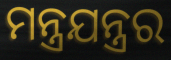
ମନ୍ତ୍ରଯନ୍ତ୍ରର